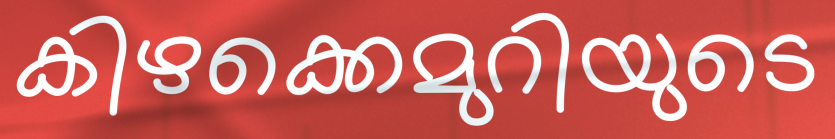
കിഴക്കെമുറിയുടെ